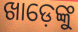
ଖାଡ଼େଙ୍କୁ